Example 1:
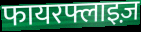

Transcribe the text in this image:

फायरफ्लाइज़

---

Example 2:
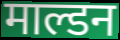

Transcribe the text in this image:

माल्डन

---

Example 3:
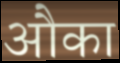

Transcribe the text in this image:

औका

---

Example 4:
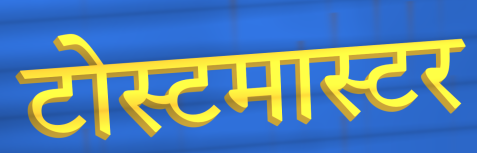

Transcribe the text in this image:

टोस्टमास्टर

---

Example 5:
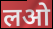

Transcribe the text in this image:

लओ